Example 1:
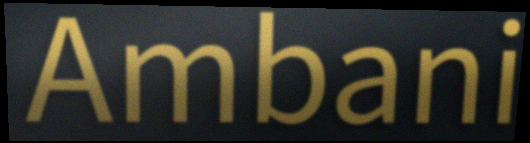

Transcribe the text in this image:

Ambani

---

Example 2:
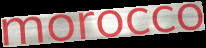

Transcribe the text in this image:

morocco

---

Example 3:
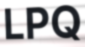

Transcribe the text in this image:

LPQ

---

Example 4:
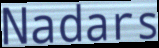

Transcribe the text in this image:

Nadars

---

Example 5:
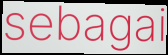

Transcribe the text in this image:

sebagai